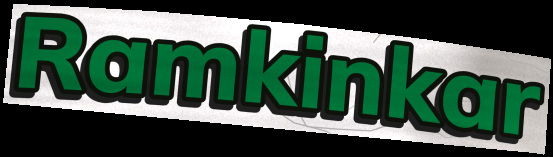
Ramkinkar